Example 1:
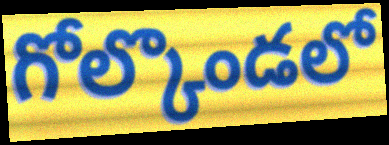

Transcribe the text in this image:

గోల్కొండలో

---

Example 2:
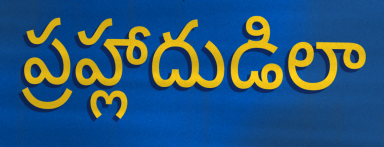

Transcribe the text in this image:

ప్రహ్లాదుడిలా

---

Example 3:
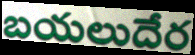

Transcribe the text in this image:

బయలుదేర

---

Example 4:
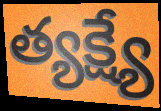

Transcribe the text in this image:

త్యక్ష్యే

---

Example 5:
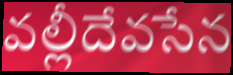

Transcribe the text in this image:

వల్లీదేవసేన